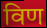
विण